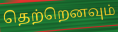
தெற்றெனவும்